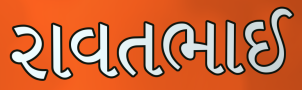
રાવતભાઈ